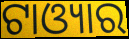
ଟାଓ୍ୟାର